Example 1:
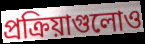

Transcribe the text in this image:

প্রক্রিয়াগুলোও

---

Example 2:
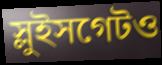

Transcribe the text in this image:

স্লুইসগেটও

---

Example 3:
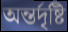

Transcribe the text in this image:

অন্তর্দৃষ্টি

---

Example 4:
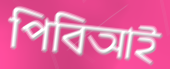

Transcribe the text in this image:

পিবিআই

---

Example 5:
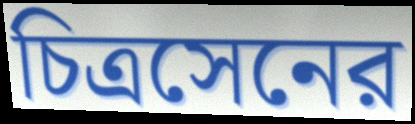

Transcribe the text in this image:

চিত্রসেনের